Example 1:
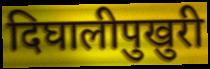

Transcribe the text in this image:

दिघालीपुखुरी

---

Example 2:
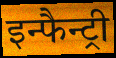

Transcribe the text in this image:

इन्फैन्ट्री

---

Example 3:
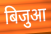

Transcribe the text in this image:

बिजुआ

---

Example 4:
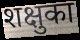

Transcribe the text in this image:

शक्षुका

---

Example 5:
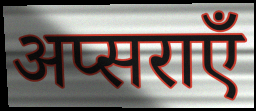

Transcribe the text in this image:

अप्सराएँ